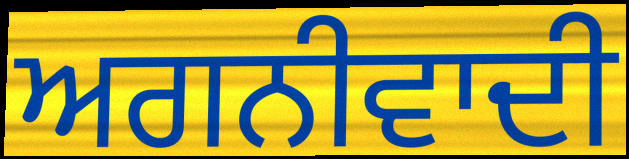
ਅਗਨੀਵਾਦੀ